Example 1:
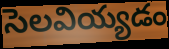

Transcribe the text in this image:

సెలవియ్యడం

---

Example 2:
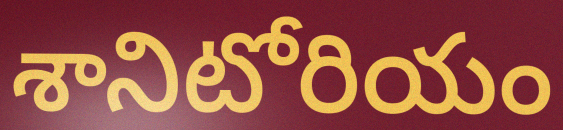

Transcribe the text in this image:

శానిటోరియం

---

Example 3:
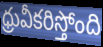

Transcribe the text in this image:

ధ్రువీకరిస్తోంది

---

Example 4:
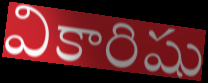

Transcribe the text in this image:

వికారిషు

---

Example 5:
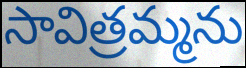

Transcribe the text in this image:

సావిత్రమ్మను